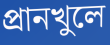
প্রানখুলে